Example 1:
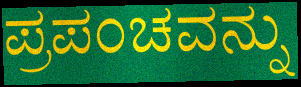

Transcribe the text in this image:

ಪ್ರಪಂಚವನ್ನು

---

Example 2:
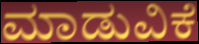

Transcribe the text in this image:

ಮಾಡುವಿಕೆ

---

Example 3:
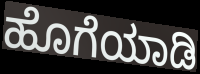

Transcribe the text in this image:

ಹೊಗೆಯಾಡಿ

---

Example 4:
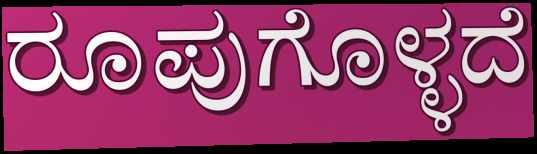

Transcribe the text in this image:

ರೂಪುಗೊಳ್ಳದೆ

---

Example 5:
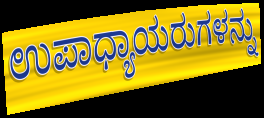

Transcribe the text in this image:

ಉಪಾಧ್ಯಾಯರುಗಳನ್ನು